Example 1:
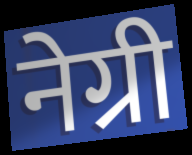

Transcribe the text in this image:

नेग्री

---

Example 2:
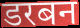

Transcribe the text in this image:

डरबन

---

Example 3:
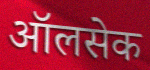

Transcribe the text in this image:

ऑलसेक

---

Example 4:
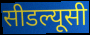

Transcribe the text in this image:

सीडल्यूसी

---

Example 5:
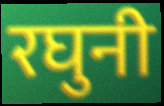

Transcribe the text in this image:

रघुनी